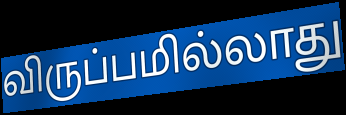
விருப்பமில்லாது